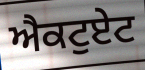
ਐਕਟੁਏਟ